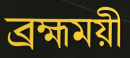
ব্রহ্মময়ী